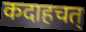
कदाहचत्